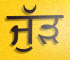
ਜੁੱੜ